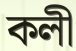
কলী